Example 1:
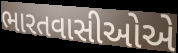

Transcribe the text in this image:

ભારતવાસીઓએ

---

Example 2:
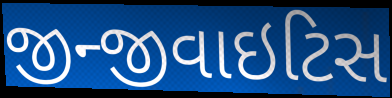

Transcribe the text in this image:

જીન્જીવાઇટિસ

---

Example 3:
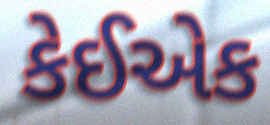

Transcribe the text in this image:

કેઈએક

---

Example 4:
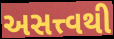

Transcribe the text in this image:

અસત્ત્વથી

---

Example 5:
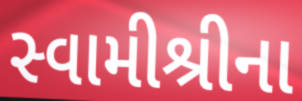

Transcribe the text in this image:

સ્વામીશ્રીના